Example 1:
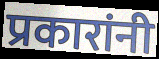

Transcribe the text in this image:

प्रकारांनी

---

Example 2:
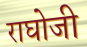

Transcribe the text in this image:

राघोजी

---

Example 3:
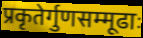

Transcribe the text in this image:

प्रकृतेर्गुणसम्मूढाः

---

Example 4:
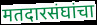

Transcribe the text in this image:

मतदारसंघांचा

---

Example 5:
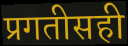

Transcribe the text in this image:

प्रगतीसही